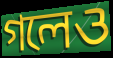
গলেও